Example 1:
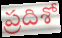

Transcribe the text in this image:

ప్రదిశో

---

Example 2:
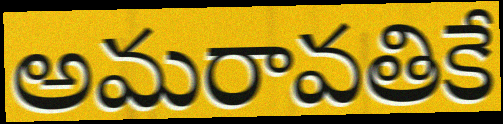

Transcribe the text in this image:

అమరావతికే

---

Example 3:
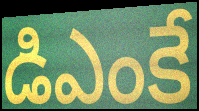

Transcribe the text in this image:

డిఎంకే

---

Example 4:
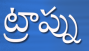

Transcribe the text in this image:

ట్రాప్ను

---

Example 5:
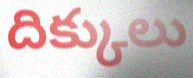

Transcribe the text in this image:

దిక్కులు